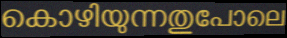
കൊഴിയുന്നതുപോലെ